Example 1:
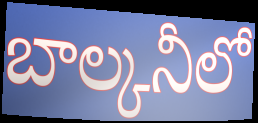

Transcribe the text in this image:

బాల్కనీలో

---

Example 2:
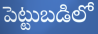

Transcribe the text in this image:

పెట్టుబడిలో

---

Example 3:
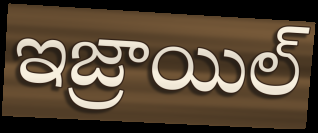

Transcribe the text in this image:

ఇజ్రాయిల్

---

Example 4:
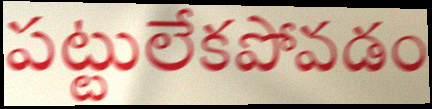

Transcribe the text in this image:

పట్టులేకపోవడం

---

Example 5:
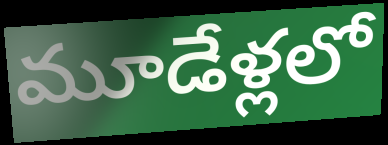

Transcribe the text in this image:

మూడేళ్లలో